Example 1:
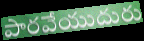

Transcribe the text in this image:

పారవేయుదురు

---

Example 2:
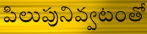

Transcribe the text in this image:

పిలుపునివ్వటంతో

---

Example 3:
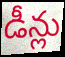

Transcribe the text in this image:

డీన్లు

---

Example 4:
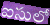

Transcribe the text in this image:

ఐసులో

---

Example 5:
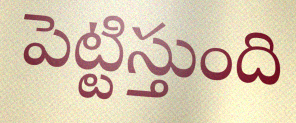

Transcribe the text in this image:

పెట్టిస్తుంది